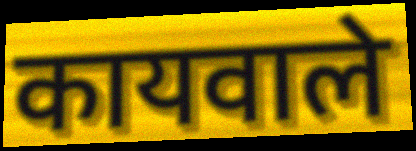
कायवाले